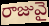
రాజువై